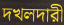
দখলদারী